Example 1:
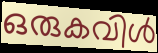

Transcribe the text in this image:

ഒരുകവിൾ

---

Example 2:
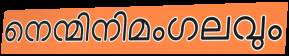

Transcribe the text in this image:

നെന്മിനിമംഗലവും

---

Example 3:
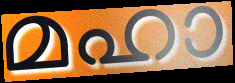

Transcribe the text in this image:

മഹാ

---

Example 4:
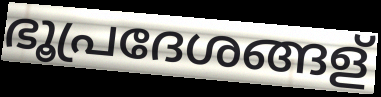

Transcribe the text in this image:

ഭൂപ്രദേശങ്ങള്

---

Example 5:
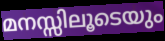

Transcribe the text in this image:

മനസ്സിലൂടെയും